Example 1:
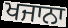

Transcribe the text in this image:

ਖਜਾਨਾ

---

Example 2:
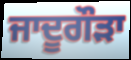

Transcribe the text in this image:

ਜਾਦੂਗੌੜਾ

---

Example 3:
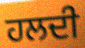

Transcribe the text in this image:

ਹਲਦੀ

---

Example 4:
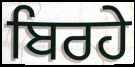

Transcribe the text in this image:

ਬਿਰਹੇ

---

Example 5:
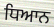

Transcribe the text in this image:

ਧਿਆਨ